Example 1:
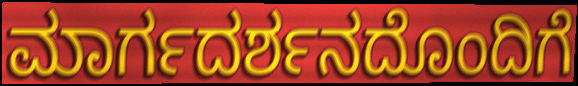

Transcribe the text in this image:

ಮಾರ್ಗದರ್ಶನದೊಂದಿಗೆ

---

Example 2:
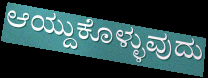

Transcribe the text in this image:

ಆಯ್ದುಕೊಳ್ಳುವುದು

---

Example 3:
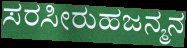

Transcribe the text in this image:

ಸರಸೀರುಹಜನ್ಮನ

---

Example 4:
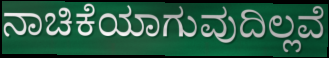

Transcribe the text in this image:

ನಾಚಿಕೆಯಾಗುವುದಿಲ್ಲವೆ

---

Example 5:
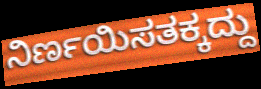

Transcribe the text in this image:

ನಿರ್ಣಯಿಸತಕ್ಕದ್ದು